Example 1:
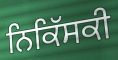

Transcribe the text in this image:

ਨਿਕਿੱਸਕੀ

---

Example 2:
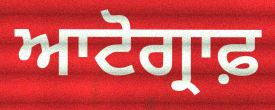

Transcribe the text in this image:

ਆਟੋਗ੍ਰਾਫ਼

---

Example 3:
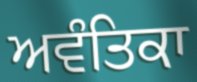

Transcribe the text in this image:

ਅਵੰਤਿਕਾ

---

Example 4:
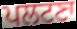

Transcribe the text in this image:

ਪਲਟਣਾ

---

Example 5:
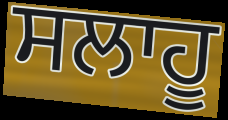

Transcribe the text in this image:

ਸਲਾਹੂ